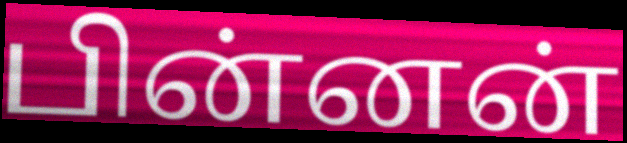
பின்னன்